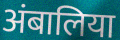
अंबालिया